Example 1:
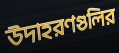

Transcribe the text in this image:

উদাহরণগুলির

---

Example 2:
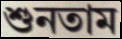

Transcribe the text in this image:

শুনতাম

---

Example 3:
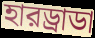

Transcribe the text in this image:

হারড্রাডা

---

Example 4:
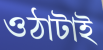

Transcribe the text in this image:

ওঠাটাই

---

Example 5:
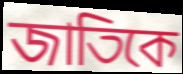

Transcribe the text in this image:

জাতিকে